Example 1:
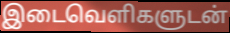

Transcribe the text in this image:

இடைவெளிகளுடன்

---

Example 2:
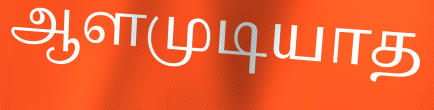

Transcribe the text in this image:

ஆளமுடியாத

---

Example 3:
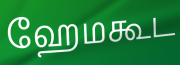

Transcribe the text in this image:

ஹேமகூட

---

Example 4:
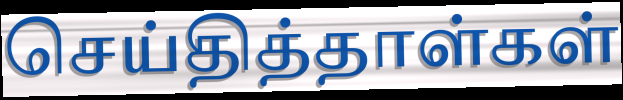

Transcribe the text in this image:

செய்தித்தாள்கள்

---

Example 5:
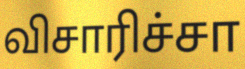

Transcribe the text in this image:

விசாரிச்சா